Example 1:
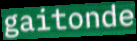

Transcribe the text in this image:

gaitonde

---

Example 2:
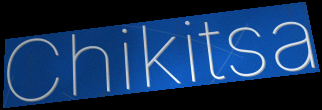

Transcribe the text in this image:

Chikitsa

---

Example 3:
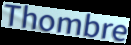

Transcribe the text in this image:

Thombre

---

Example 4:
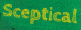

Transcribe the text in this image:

Sceptical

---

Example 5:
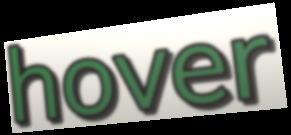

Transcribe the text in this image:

hover